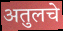
अतुलचे